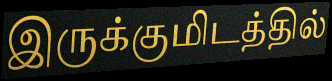
இருக்குமிடத்தில்